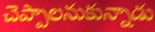
చెప్పాలనుకున్నాడు